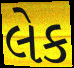
લેક